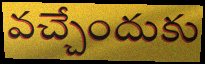
వచ్చేందుకు